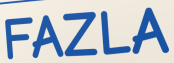
FAZLA